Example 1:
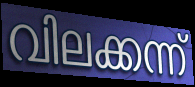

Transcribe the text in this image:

വിലക്കന്ന്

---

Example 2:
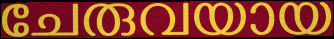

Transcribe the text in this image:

ചേരുവയായ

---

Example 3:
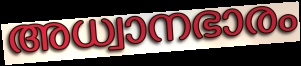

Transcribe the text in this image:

അധ്വാനഭാരം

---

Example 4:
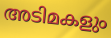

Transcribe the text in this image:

അടിമകളും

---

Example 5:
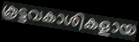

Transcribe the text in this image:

കൂട്ടവകാശികളായ